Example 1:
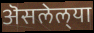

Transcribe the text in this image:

ऄसलेल्या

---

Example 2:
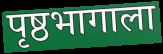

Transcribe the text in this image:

पृष्ठभागाला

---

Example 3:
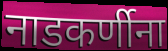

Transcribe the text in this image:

नाडकर्णीना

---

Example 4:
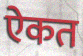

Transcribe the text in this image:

ऐकत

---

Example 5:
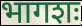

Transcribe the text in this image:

भागशः